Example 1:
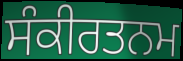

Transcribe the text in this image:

ਸੰਕੀਰਤਨਮ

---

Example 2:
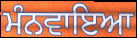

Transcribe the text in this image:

ਮੰਨਵਾਇਆ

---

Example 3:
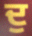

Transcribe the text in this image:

ਦੁ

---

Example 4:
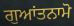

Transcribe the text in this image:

ਗੁਆਂਤਨਾਮੋ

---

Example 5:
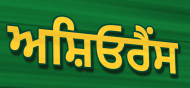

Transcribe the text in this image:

ਅਸ਼ਿਓਰੈਂਸ